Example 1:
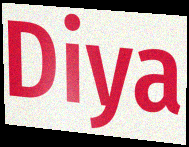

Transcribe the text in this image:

Diya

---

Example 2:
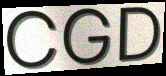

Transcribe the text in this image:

CGD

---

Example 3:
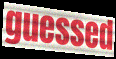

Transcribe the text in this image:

guessed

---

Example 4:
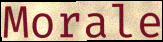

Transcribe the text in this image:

Morale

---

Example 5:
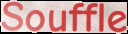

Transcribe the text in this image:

Souffle